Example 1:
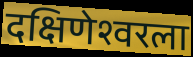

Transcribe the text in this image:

दक्षिणेश्वरला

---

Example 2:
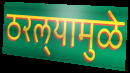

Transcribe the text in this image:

ठरल्यामुळे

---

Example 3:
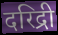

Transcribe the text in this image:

दरिद्री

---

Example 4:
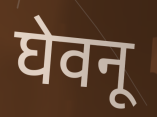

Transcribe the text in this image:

घेवनू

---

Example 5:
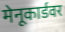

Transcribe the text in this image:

मेनूकार्डवर